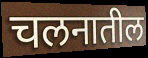
चलनातील